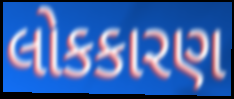
લોકકારણ